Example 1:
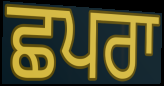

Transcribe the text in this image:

ਛਪਰਾ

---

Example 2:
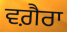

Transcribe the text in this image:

ਵਗ਼ੈਰਾ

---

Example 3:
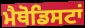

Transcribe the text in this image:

ਮੈਥੋਡਿਸਟਾਂ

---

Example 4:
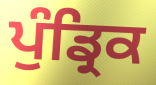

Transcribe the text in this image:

ਪੁੰਡ੍ਰਿਕ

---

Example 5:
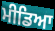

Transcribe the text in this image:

ਮੀਡਿਆ